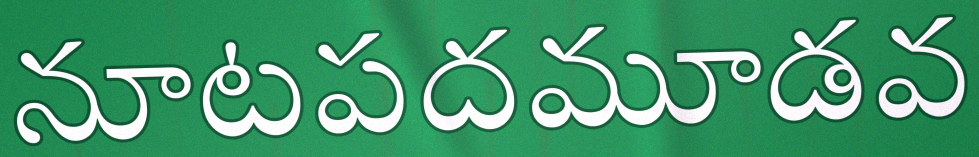
నూటపదమూడవ